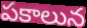
పకాలున